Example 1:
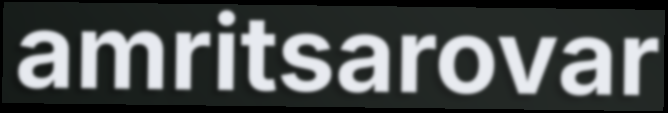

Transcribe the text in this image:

amritsarovar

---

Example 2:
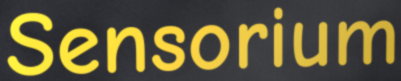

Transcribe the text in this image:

Sensorium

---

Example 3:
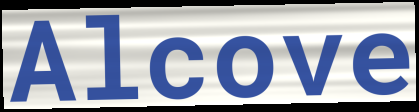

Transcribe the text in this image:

Alcove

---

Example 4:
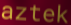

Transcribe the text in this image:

aztek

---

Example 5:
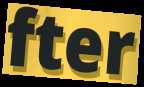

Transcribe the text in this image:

fter